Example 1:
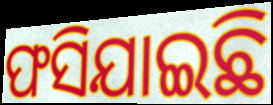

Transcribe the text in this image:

ଫସିଯାଇଛି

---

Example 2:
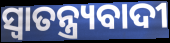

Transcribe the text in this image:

ସ୍ୱାତନ୍ତ୍ର୍ୟବାଦୀ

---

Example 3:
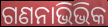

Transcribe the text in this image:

ଗଣନାଭିଭିକ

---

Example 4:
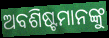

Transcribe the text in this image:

ଅବଶିଷ୍ଟମାନଙ୍କୁ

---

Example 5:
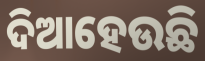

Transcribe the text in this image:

ଦିଆହେଉଛି